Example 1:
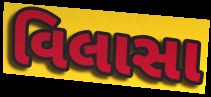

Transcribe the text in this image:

વિલાસા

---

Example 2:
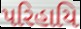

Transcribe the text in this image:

પરિહાયિ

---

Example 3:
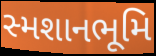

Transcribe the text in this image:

સ્મશાનભૂમિ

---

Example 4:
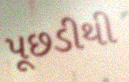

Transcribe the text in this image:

પૂછડીથી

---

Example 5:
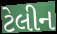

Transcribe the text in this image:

ટેલીન